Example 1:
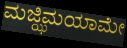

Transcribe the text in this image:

ಮಜ್ಝಿಮಯಾಮೇ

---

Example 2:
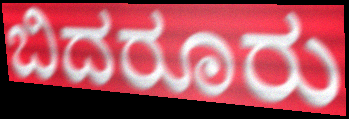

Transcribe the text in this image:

ಬಿದರೂರು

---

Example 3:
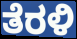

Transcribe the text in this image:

ತೆರಳಿ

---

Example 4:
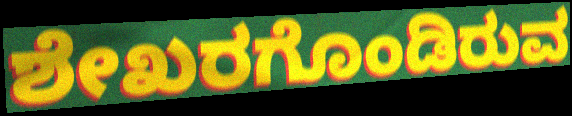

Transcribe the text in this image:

ಶೇಖರಗೊಂಡಿರುವ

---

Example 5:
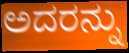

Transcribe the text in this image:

ಅದರನ್ನು